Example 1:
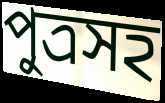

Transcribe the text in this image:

পুত্রসহ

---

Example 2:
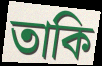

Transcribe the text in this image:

তাকি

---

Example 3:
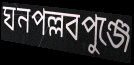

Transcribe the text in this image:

ঘনপল্লবপুঞ্জে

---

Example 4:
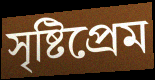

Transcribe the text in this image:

সৃষ্টিপ্রেম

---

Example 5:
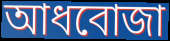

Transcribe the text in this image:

আধবোজা